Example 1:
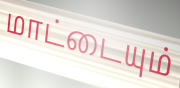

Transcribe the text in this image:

மாட்டையும்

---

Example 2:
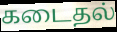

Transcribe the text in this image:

கடைதல்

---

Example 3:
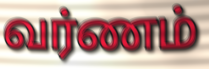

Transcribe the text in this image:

வர்ணம்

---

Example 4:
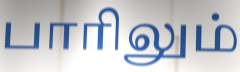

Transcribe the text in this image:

பாரிலும்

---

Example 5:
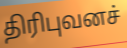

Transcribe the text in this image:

திரிபுவனச்